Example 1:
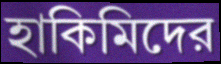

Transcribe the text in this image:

হাকিমিদের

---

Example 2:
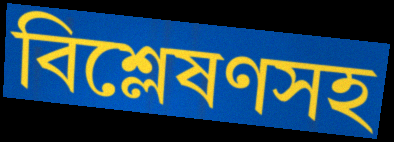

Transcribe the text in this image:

বিশ্লেষণসহ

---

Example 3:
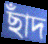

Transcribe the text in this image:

ছাঁদ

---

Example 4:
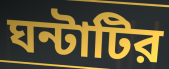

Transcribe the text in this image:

ঘন্টাটির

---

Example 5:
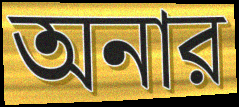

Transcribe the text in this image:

অনার